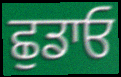
ਛੁਡਾਓ